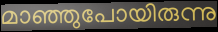
മാഞ്ഞുപോയിരുന്നു